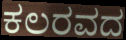
ಕಲರವದ